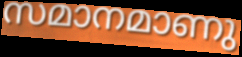
സമാനമാണു